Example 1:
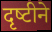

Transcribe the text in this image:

दृष्‍टीने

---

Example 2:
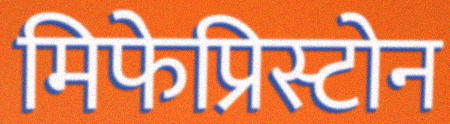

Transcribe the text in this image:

मिफेप्रिस्टोन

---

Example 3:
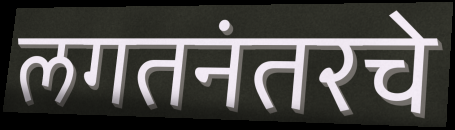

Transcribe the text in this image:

लगतनंतरचे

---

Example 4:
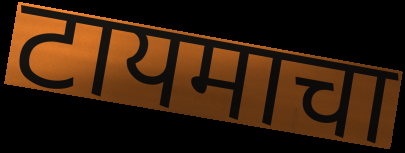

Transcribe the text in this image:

टायमाचा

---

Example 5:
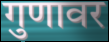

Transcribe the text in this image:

गुणावर